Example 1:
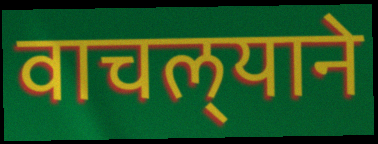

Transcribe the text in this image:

वाचल्याने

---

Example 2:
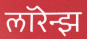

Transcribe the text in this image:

लॉरेन्झ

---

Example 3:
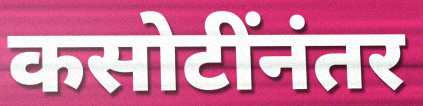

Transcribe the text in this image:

कसोटींनंतर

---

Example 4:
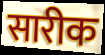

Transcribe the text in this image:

सारीक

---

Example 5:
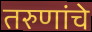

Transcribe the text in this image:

तरुणांचे